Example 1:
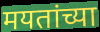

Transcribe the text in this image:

मयतांच्या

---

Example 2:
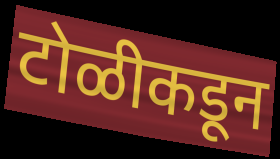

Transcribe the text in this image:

टोळीकडून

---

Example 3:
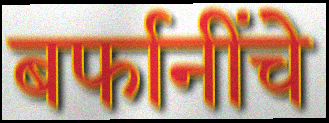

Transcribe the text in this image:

बर्फानींचे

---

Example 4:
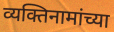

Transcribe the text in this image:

व्यक्तिनामांच्या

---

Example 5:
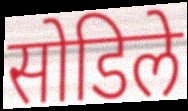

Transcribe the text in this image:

सोडिले